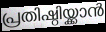
പ്രതിഷ്ഠിയ്ക്കാൻ